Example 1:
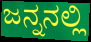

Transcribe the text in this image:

ಜನ್ನನಲ್ಲಿ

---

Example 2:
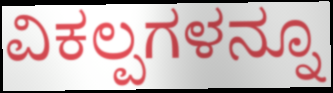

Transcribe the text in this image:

ವಿಕಲ್ಪಗಳನ್ನೂ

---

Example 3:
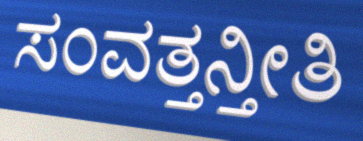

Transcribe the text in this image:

ಸಂವತ್ತನ್ತೀತಿ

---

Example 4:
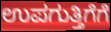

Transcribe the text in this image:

ಉಪಗುತ್ತಿಗೆಗೆ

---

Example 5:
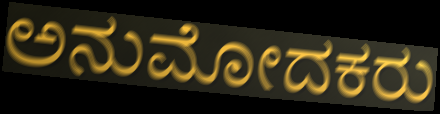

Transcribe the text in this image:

ಅನುಮೋದಕರು